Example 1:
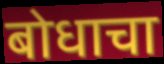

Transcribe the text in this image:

बोधाचा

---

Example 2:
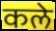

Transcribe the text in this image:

कले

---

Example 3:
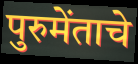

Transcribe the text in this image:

पुरुमेंताचे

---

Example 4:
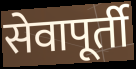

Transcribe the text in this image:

सेवापूर्ती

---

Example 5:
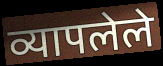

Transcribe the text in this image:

व्यापलेले